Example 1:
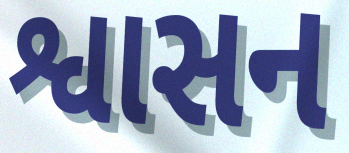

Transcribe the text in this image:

શ્વાસન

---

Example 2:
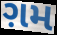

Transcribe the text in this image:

ગ઼મ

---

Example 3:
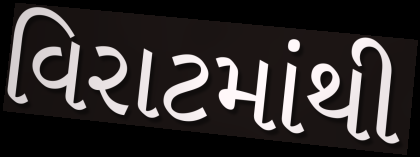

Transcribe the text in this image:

વિરાટમાંથી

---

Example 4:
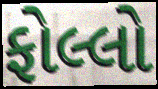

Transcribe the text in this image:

ફોલ્લો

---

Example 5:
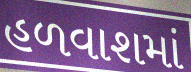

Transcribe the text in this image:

હળવાશમાં